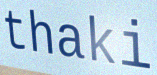
thaki